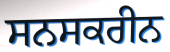
ਸਨਸਕਰੀਨ